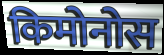
किमोनोस